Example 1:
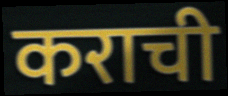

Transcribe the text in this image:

कराची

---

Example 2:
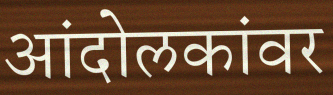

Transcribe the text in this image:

आंदोलकांवर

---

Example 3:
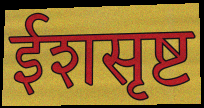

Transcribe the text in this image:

ईशसृष्ट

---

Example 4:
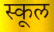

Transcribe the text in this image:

स्कूल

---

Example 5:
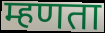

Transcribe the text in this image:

म्हणता